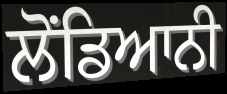
ਲੋਂਡਿਆਨੀ